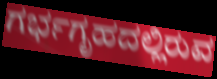
ಗರ್ಭಗೃಹದಲ್ಲಿರುವ